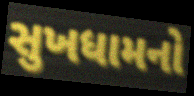
સુખધામનો